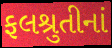
ફલશ્રુતીનાં